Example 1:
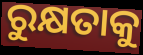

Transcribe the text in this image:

ରୁକ୍ଷତାକୁ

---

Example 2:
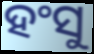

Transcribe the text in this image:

ହଂସୁ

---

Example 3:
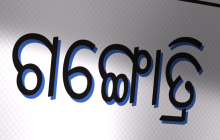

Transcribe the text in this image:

ଗଙ୍ଗୋତ୍ରି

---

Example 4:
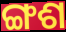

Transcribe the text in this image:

ଙ୍ଗଶ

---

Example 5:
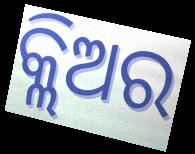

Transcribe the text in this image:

କ୍ଲିଅର